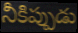
నీకిప్పుడు